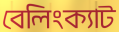
বেলিংক্যাট